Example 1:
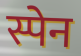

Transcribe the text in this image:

स्पेन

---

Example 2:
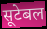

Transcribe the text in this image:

सूटेबल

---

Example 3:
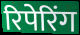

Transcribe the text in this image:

रिपेरिंग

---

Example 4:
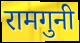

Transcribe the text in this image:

रामगुनी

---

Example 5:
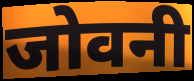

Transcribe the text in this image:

जोवनी